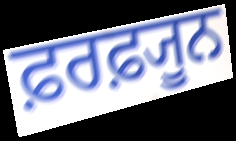
ਫ਼ਰਫ਼੍ਯੂਨ